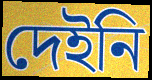
দেইনি